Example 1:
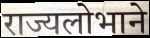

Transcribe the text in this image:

राज्यलोभाने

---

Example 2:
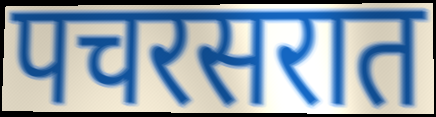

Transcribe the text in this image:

पचरसरात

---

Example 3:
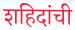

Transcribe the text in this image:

शहिदांची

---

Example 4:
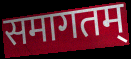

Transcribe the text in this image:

समागतम्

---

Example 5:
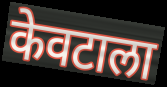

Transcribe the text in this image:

केवटाला